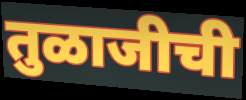
तुळाजीची